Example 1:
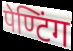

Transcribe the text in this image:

पेण्टिंग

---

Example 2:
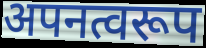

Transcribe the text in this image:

अपनत्वरूप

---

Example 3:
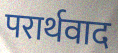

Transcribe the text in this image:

परार्थवाद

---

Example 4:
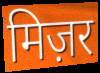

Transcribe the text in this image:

मिज़र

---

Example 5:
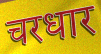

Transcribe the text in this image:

चरधार